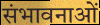
संभावनाओं